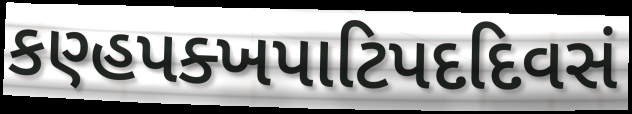
કણ્હપક્ખપાટિપદદિવસં